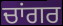
ਚਾਂਗਰ